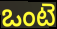
ఒంటె